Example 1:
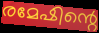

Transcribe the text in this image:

രമേഷിന്റെ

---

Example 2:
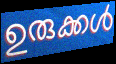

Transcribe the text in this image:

ഉരുക്കൾ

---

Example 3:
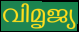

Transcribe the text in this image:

വിമൃജ്യ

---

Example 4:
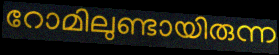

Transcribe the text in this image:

റോമിലുണ്ടായിരുന്ന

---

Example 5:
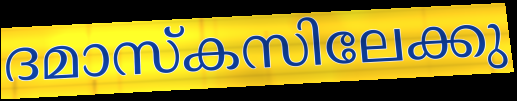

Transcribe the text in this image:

ദമാസ്കസിലേക്കു